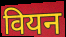
वियन